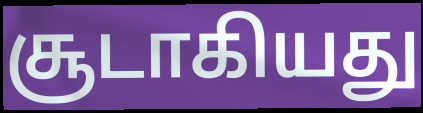
சூடாகியது